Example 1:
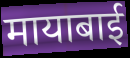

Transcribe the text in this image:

मायाबाई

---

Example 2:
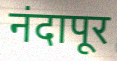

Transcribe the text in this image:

नंदापूर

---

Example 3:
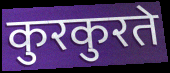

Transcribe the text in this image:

कुरकुरते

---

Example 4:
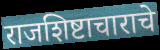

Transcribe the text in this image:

राजशिष्टाचाराचे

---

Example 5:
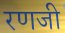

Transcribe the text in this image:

रणजी